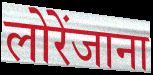
लोरेंजाना